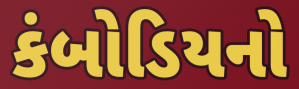
કંબોડિયનો